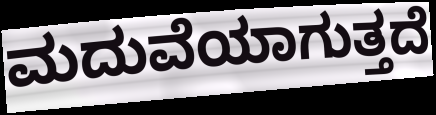
ಮದುವೆಯಾಗುತ್ತದೆ